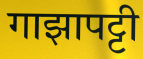
गाझापट्टी